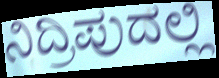
ನಿದ್ರಿಪುದಲ್ಲಿ